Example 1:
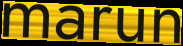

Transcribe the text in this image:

marun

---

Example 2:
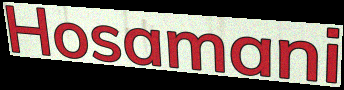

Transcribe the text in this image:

Hosamani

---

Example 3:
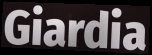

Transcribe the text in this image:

Giardia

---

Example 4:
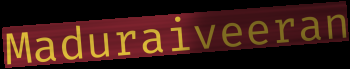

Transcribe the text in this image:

Maduraiveeran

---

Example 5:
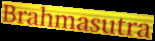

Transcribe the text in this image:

Brahmasutra